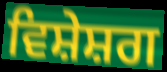
ਵਿਸ਼ੇਸ਼ਗ